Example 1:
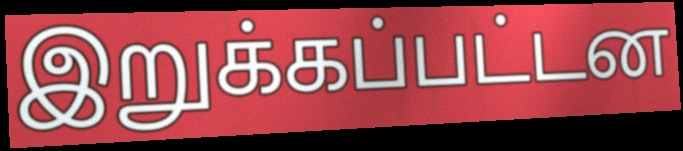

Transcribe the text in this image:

இறுக்கப்பட்டன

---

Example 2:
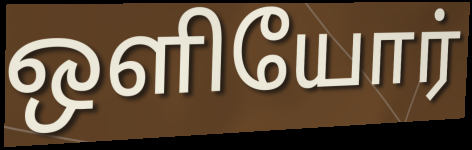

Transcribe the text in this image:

ஒளியோர்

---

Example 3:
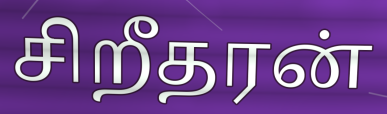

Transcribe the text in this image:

சிறீதரன்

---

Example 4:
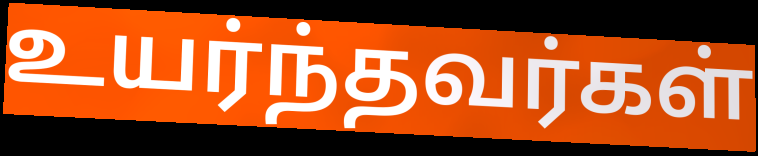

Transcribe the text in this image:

உயர்ந்தவர்கள்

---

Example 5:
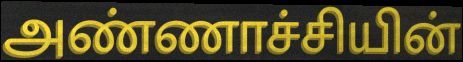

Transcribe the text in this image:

அண்ணாச்சியின்